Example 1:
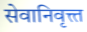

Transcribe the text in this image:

सेवानिवृत्त्त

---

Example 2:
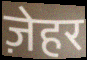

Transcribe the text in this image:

ज़ेहर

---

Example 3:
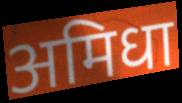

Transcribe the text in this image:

अमिधा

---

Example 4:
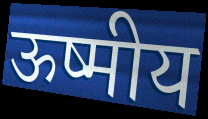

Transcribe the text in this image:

ऊष्मीय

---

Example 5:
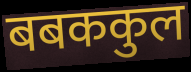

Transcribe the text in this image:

बबककुल